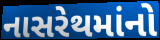
નાસરેથમાંનો